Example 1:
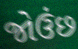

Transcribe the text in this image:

જોઉંછ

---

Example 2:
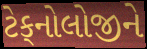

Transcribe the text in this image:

ટેક્‌નોલોજીને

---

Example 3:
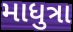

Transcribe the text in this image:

માધુત્રા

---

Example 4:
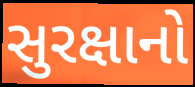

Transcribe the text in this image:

સુરક્ષાનો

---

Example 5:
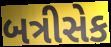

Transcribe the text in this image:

બત્રીસેક